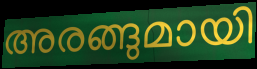
അരങ്ങുമായി